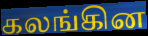
கலங்கின